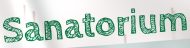
Sanatorium